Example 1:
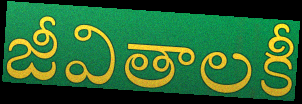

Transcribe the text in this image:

జీవితాలకీ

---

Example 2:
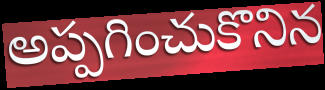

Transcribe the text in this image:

అప్పగించుకొనిన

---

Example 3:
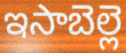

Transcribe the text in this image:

ఇసాబెల్లె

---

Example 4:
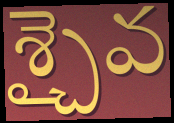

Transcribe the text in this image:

శ్చైవ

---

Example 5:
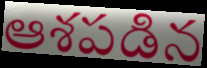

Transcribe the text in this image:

ఆశపడిన